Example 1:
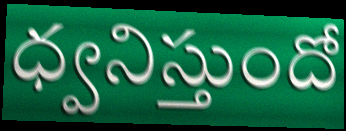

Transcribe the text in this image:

ధ్వనిస్తుందో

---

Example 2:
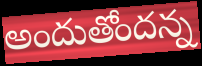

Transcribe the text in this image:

అందుతోందన్న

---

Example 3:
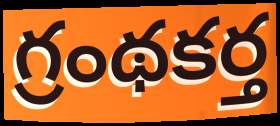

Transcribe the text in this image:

గ్రంథకర్త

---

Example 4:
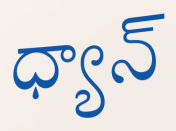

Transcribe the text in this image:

ధ్యాన్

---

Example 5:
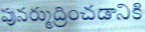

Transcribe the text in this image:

పునర్ముద్రించడానికి